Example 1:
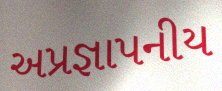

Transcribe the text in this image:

અપ્રજ્ઞાપનીય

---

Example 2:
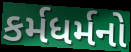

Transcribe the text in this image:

કર્મધર્મનો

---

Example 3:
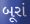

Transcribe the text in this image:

બૂરાં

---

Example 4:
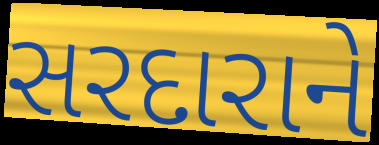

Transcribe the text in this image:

સરદારાને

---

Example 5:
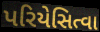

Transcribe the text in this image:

પરિયેસિત્વા